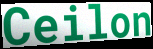
Ceilon